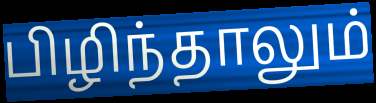
பிழிந்தாலும்